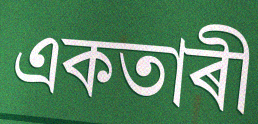
একতাৰী